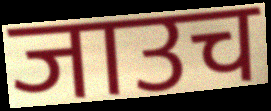
जाउच